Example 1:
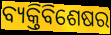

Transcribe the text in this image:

ବ୍ୟକ୍ତିବିଶେଷର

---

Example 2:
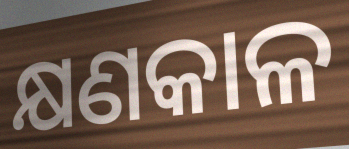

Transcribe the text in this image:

କ୍ଷଣକାଳ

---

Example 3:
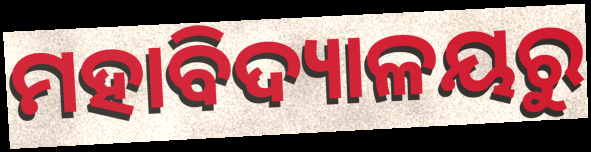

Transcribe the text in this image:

ମହାବିଦ୍ୟାଳୟରୁ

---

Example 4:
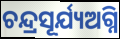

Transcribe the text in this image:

ଚନ୍ଦ୍ରସୂର୍ଯ୍ୟଅଗ୍ନି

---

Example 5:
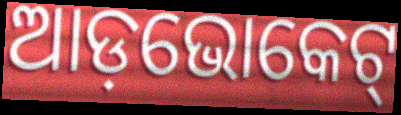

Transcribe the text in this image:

ଆଡ଼ଭୋକେଟ୍